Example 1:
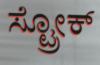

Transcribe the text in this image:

ಸ್ಟ್ರೋಕ್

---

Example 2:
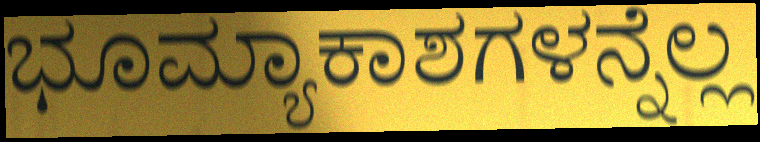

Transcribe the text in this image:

ಭೂಮ್ಯಾಕಾಶಗಳನ್ನೆಲ್ಲ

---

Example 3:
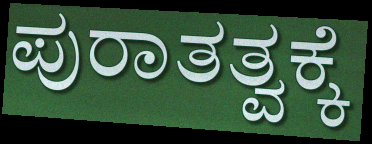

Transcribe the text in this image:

ಪುರಾತತ್ವಕ್ಕೆ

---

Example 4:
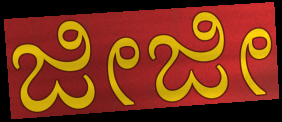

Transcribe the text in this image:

ಜೀಜೀ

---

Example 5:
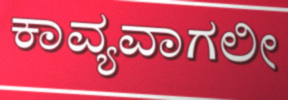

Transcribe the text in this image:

ಕಾವ್ಯವಾಗಲೀ